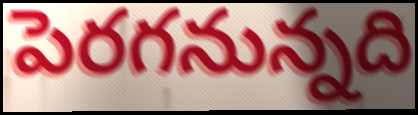
పెరగనున్నది